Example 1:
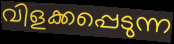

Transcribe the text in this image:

വിളക്കപ്പെടുന്ന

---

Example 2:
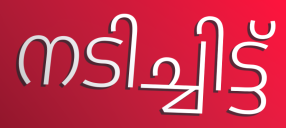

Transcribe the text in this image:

നടിച്ചിട്ട്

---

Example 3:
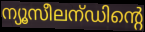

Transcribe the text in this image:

ന്യൂസീലന്ഡിന്റെ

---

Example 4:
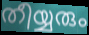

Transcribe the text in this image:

തീയ്യരും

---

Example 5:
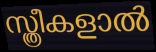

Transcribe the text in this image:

സ്ത്രീകളാൽ